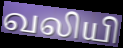
வலியி